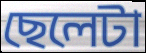
ছেলেটা